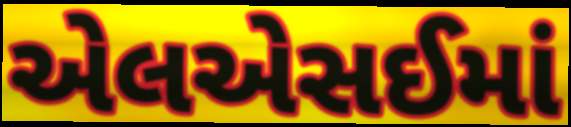
એલએસઈમાં